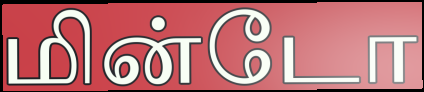
மின்டோ